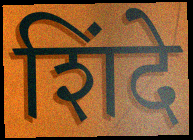
शिंदे